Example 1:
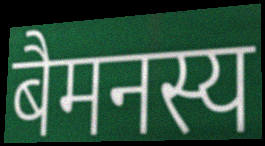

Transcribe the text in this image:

बैमनस्य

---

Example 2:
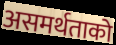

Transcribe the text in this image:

असमर्थताको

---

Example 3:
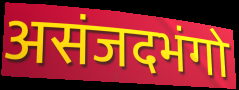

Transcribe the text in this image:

असंजदभंगो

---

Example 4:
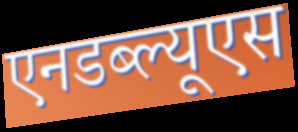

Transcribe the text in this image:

एनडब्ल्यूएस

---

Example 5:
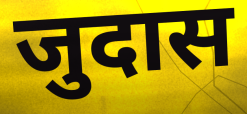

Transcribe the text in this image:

जुदास